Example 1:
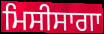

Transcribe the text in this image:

ਮਿਸੀਸਾਗਾ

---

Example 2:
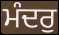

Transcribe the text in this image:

ਮੰਦਰੁ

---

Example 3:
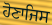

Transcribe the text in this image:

ਹੋਣਾਜਿਸ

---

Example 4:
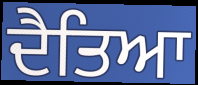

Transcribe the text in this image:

ਦੈਤਿਆ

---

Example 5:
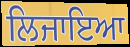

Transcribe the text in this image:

ਲਿਜਾਇਆ